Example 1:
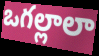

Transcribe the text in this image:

ఒగల్లాలా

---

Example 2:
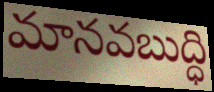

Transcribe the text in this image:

మానవబుద్ధి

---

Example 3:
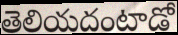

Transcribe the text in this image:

తెలియదంటాడో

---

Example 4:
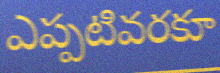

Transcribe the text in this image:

ఎప్పటివరకూ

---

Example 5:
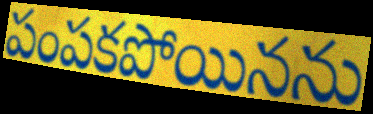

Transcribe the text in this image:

పంపకపోయినను